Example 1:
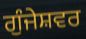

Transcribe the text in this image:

ਗੁੰਜੇਸ਼ਵਰ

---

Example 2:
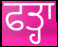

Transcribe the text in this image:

ਫਤ੍ਹਾ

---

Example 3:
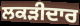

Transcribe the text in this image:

ਲਕੜੀਦਾਰ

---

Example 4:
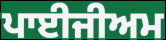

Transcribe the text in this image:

ਪਾਈਜੀਅਮ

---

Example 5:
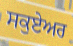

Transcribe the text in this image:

ਸਕੁਏਅਰ